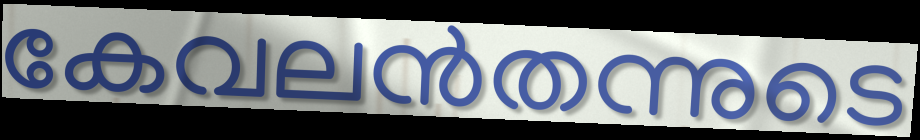
കേവലൻതന്നുടെ